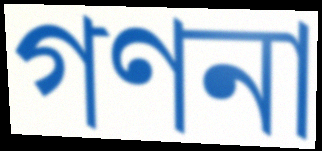
গণনা